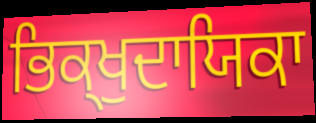
ਭਿਕ੍ਖੁਦਾਯਿਕਾ